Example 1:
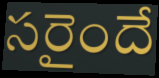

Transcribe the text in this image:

సరైందే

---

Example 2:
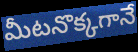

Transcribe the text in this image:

మీటనొక్కగానే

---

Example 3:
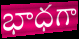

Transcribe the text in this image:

భాధగా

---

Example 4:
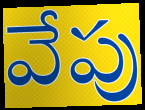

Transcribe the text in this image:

వేపు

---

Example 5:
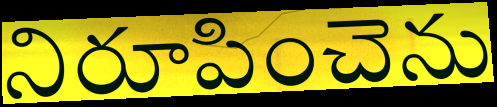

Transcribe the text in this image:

నిరూపించెను